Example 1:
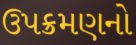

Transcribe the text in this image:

ઉપક્રમણનો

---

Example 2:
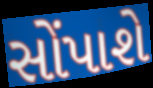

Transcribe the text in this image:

સોંપાશે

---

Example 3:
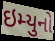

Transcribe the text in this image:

ઇમ્યુનો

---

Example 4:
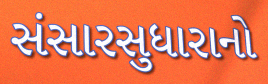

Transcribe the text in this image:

સંસારસુધારાનો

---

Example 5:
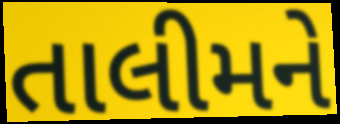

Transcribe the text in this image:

તાલીમને